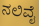
ನಲಿವೈ